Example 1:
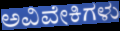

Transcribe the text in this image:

ಅವಿವೇಕಿಗಳು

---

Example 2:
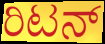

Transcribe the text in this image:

ರಿಟನ್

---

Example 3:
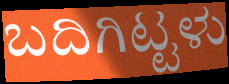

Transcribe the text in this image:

ಬದಿಗಿಟ್ಟಳು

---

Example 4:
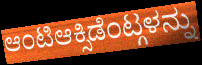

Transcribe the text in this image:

ಆಂಟಿಆಕ್ಸಿಡೆಂಟ್ಗಳನ್ನು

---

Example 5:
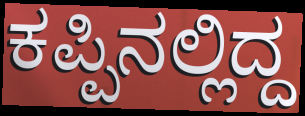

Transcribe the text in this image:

ಕಪ್ಪಿನಲ್ಲಿದ್ದ